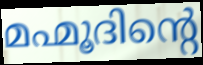
മഹ്മൂദിന്റെ